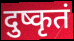
दुष्कृतं